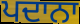
ਪਦਾਨਾ